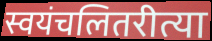
स्वयंचलितरीत्या